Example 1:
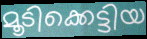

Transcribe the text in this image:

മൂടിക്കെട്ടിയ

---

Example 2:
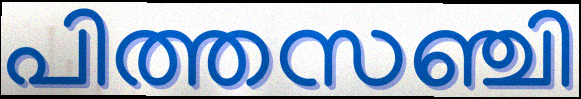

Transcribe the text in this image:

പിത്തസഞ്ചി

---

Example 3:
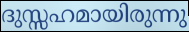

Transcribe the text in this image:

ദുസ്സഹമായിരുന്നു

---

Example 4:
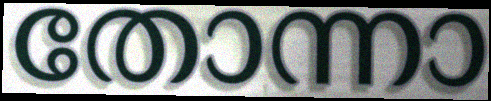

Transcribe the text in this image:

തോന്നാ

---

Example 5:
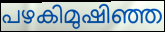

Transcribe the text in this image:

പഴകിമുഷിഞ്ഞ